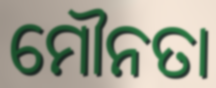
ମୌନତା